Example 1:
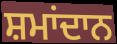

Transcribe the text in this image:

ਸ਼ਮਾਂਦਾਨ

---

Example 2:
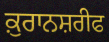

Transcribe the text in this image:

ਕ਼ੁਰਾਨਸ਼ਰੀਫ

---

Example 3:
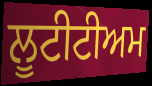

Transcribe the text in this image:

ਲੂਟੀਟੀਅਮ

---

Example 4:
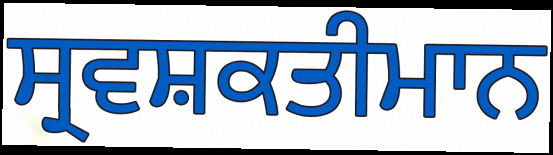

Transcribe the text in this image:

ਸ੍ਰਵਸ਼ਕਤੀਮਾਨ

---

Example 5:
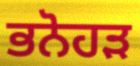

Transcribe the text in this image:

ਭਨੋਹੜ